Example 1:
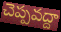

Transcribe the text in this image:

చెప్పవద్దా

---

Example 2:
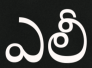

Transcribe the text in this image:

ఎలీ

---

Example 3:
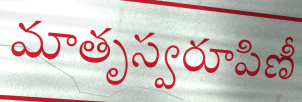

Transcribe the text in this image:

మాతృస్వరూపిణీ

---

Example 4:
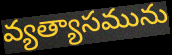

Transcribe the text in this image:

వ్యత్యాసమును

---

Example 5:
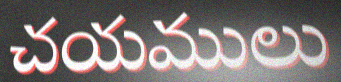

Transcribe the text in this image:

చయములు